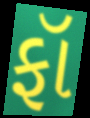
ફૉ